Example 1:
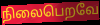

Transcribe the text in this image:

நிலைபெறவே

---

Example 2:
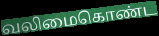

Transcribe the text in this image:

வலிமைகொண்ட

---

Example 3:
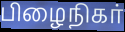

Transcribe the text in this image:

பிழைநிகர்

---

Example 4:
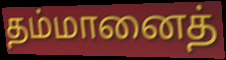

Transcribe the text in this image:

தம்மானைத்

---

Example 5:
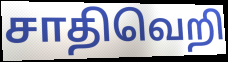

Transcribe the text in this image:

சாதிவெறி